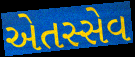
એતસ્સેવ